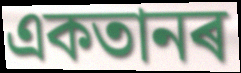
একতানৰ